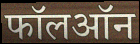
फॉलऑन